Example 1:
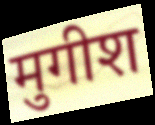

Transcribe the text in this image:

मुगीश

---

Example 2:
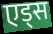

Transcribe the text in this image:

एड्स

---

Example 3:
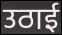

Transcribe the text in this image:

उठाई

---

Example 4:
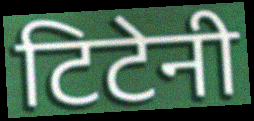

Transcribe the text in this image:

टिटेनी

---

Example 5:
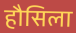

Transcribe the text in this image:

हौसिला